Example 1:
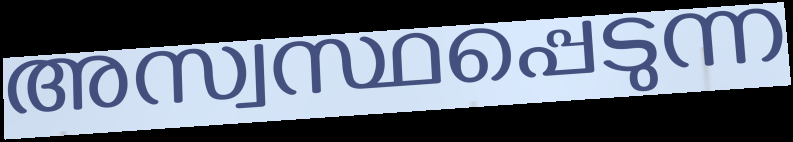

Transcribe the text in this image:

അസ്വസ്ഥപ്പെടുന്ന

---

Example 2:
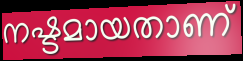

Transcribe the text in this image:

നഷ്ടമായതാണ്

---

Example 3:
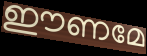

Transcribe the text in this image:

ഈണമേ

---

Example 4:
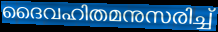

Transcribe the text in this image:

ദൈവഹിതമനുസരിച്ച്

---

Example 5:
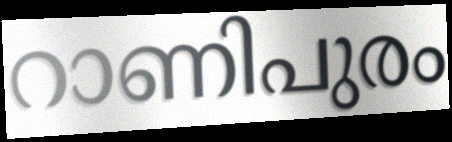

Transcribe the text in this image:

റാണിപുരം